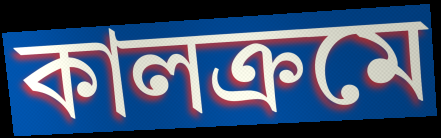
কালক্রমে